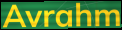
Avrahm